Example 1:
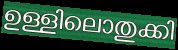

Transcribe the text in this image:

ഉള്ളിലൊതുക്കി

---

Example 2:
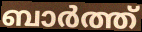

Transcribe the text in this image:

ബാർത്ത്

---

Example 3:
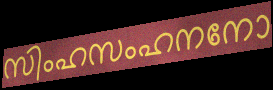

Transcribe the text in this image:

സിംഹസംഹനനോ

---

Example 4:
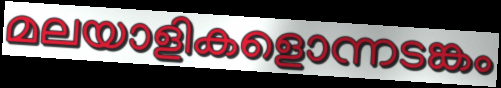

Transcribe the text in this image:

മലയാളികളൊന്നടങ്കം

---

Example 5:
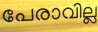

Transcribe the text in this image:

പേരാവില്ല